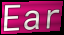
Ear